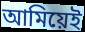
আমিয়েই